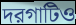
দরগাটিও